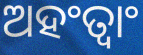
ଅହଂତ୍ୱାଂ